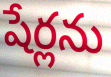
షేర్లను